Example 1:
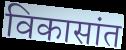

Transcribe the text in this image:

विकासांत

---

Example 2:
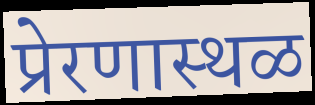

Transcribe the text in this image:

प्रेरणास्थळ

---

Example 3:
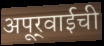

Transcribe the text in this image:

अपूर्वाईची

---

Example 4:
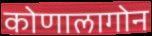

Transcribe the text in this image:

कोणालागोन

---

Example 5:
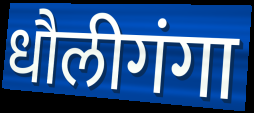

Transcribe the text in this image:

धौलीगंगा